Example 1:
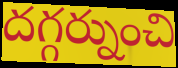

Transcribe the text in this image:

దగ్గర్నుంచి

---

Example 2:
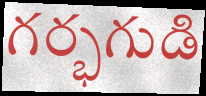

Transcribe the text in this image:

గర్భగుడి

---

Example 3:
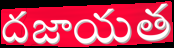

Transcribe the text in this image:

దజాయత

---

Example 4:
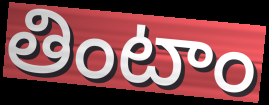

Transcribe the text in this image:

తింటాం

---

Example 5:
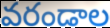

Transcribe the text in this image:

వరండాల